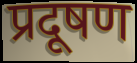
प्रदूषण